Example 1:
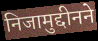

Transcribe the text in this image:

निजामुद्दीनने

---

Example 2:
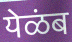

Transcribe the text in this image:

येळंब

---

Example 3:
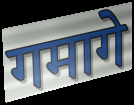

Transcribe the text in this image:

गमागे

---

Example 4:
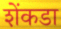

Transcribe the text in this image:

शेंकडा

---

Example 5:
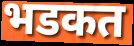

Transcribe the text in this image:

भडकत